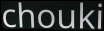
chouki